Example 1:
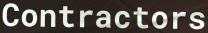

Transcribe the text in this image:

Contractors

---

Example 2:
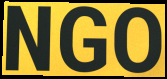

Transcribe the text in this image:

NGO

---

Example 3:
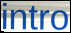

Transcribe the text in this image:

intro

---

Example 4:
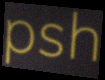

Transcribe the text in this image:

psh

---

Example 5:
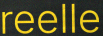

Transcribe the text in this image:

reelle